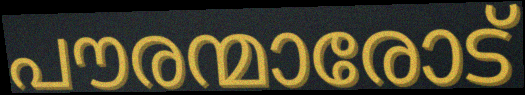
പൗരന്മാരോട്